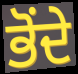
ਭੋਂਦੇ